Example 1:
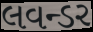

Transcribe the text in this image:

લવન્ડર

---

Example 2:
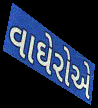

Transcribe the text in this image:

વાઘેરોએ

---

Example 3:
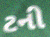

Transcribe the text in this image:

ટની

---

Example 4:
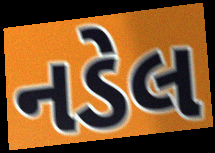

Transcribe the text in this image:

નડેલ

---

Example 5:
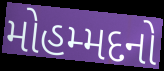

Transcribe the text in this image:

મોહમ્મદનો